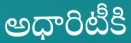
అధారిటీకి